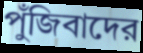
পুঁজিবাদের